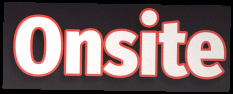
Onsite